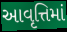
આવૃત્તિમાં